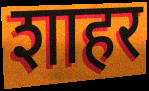
शाहर